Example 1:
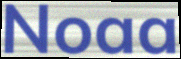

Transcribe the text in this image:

Noaa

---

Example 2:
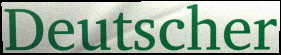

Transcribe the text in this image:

Deutscher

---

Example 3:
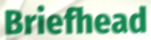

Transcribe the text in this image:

Briefhead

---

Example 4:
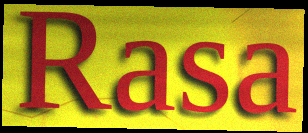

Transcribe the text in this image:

Rasa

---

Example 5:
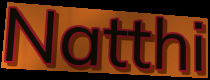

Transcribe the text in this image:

Natthi